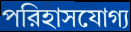
পরিহাসযোগ্য